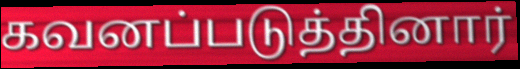
கவனப்படுத்தினார்